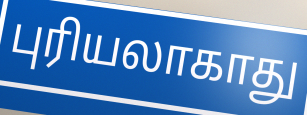
புரியலாகாது